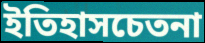
ইতিহাসচেতনা